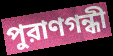
পুরাণগন্ধী